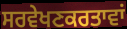
ਸਰਵੇਖਣਕਰਤਾਵਾਂ